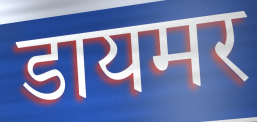
डायमर